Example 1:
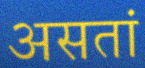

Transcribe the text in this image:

असतां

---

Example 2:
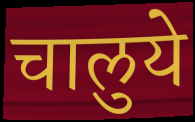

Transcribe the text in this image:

चालुये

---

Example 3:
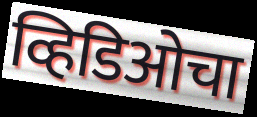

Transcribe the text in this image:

व्हिडिओचा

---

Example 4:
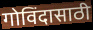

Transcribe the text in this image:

गोविंदासाठी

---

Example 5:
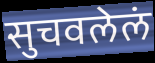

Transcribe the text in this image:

सुचवलेलं